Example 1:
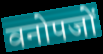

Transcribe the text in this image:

वनोपजों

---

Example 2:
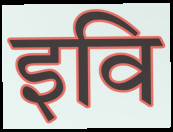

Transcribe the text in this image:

इवि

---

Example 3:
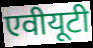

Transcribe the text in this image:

एवीयूटी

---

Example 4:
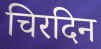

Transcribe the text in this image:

चिरदिन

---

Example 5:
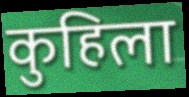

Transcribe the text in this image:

कुहिला